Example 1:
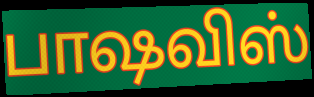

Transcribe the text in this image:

பாஷவிஸ்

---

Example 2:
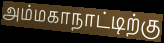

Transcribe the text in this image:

அம்மகாநாட்டிற்கு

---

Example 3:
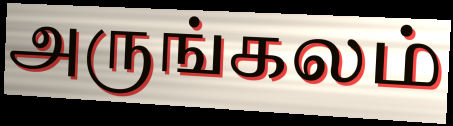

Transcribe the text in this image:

அருங்கலம்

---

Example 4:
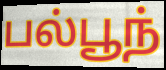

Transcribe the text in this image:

பல்பூந்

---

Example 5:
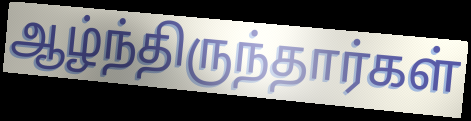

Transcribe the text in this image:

ஆழ்ந்திருந்தார்கள்